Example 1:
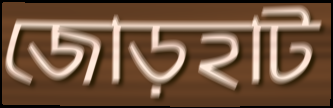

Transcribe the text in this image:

জোড়হাট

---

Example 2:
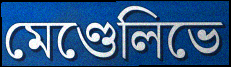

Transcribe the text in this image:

মেণ্ডেলিভে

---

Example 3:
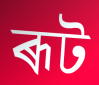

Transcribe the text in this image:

ৰূট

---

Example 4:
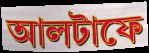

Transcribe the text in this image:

আলটাফে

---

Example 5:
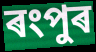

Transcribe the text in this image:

ৰংপুৰ